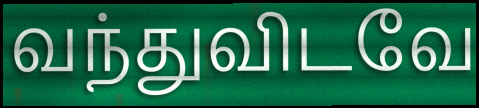
வந்துவிடவே